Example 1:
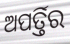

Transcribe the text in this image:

ଅପର୍ତ୍ତିର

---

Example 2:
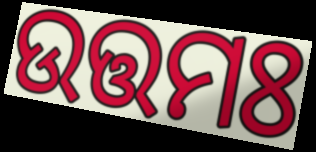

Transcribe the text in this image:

ଉତ୍ତମଃ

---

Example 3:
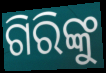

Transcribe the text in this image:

ଗିରିଙ୍କୁ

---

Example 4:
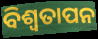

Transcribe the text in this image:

ବିଶ୍ବତାପନ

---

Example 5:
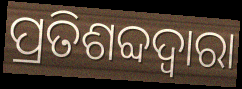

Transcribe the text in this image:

ପ୍ରତିଶବ୍ଦଦ୍ୱାରା